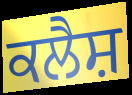
ਕਲੈਸ਼